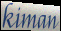
kiman